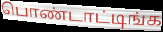
பொண்டாட்டிங்க